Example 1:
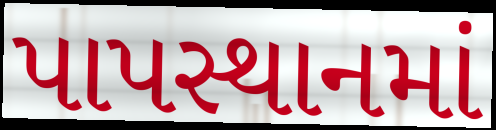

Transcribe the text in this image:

પાપસ્થાનમાં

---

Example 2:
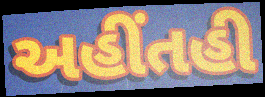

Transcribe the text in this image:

અહીંતહી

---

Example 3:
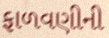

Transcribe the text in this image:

ફાળવણીની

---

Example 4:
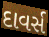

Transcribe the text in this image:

દાવર્સ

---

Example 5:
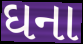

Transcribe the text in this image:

ઘના